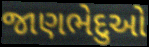
જાણભેદુઓ